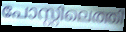
പോസ്റ്റിലെത്തി